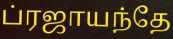
ப்ரஜாயந்தே